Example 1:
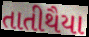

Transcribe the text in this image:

તાતીથૈયા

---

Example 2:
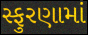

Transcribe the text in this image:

સ્ફુરણામાં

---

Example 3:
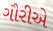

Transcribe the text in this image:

ગૌરીએ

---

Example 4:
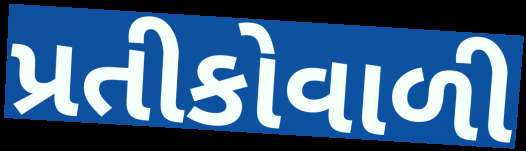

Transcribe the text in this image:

પ્રતીકોવાળી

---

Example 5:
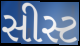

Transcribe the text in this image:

સીસ્ટ